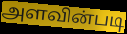
அளவின்படி